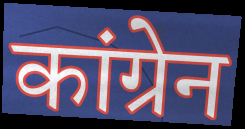
कांग्रेन